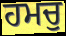
ਹਮਚੁ